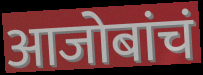
आजोबांचं